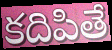
కదిపితే